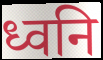
ध्वनि